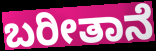
ಬರೀತಾನೆ